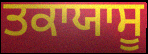
ਤਕਾਯਾਸੂ